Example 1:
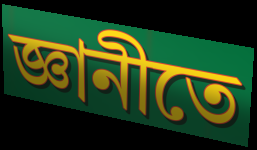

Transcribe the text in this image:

জ্ঞানীতে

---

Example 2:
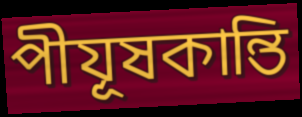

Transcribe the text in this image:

পীযূষকান্তি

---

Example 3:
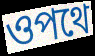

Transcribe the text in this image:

ওপথে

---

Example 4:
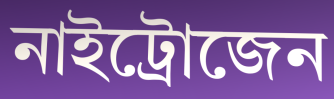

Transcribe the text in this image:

নাইট্রোজেন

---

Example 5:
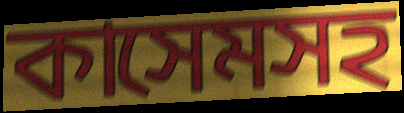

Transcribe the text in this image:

কাসেমসহ